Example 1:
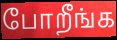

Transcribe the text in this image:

போறீங்க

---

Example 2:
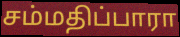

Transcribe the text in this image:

சம்மதிப்பாரா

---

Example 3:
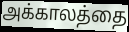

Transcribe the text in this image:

அக்காலத்தை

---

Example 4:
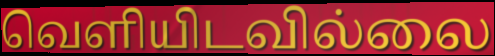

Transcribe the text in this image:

வெளியிடவில்லை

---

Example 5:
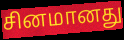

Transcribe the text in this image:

சினமானது